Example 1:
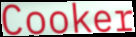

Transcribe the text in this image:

Cooker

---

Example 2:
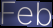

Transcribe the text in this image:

Feb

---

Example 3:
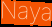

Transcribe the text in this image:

Naya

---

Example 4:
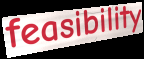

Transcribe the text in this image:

feasibility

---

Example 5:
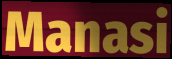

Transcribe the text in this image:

Manasi